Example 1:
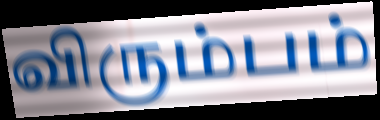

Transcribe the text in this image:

விரும்பம்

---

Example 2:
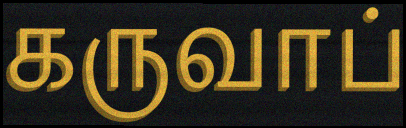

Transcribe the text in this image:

கருவாப்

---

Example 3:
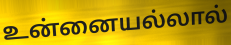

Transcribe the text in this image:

உன்னையல்லால்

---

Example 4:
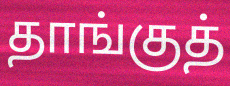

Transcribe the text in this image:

தாங்குத்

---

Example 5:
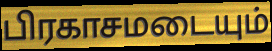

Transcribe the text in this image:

பிரகாசமடையும்